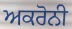
ਅਕਰੋਨੀ